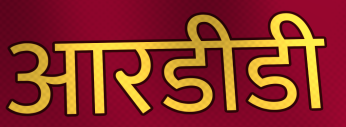
आरडीडी